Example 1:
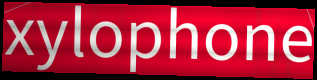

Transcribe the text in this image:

xylophone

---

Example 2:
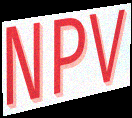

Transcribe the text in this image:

NPV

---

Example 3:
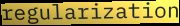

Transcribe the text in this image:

regularization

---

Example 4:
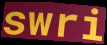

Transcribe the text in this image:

swri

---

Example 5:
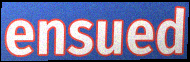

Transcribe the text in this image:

ensued